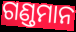
ଗଣ୍ଡମାନ